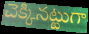
చెక్కినట్టుగా